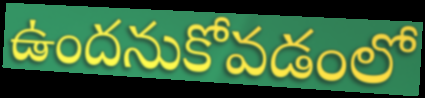
ఉందనుకోవడంలో